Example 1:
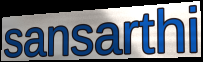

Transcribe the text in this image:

sansarthi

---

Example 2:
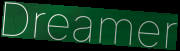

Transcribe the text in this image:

Dreamer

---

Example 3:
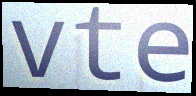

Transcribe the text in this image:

vte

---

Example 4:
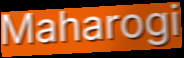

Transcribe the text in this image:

Maharogi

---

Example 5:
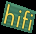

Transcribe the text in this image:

hifi